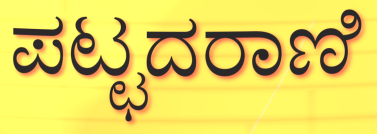
ಪಟ್ಟದರಾಣಿ